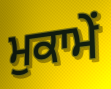
ਮੁਕਾਮੇਂ